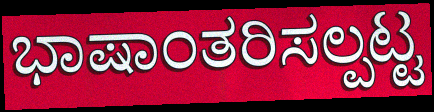
ಭಾಷಾಂತರಿಸಲ್ಪಟ್ಟ